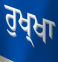
ਰੁਖ੍ਖਾ